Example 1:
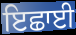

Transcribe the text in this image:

ਇਛਾਈ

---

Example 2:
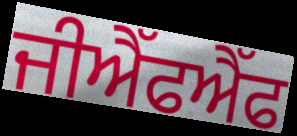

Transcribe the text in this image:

ਜੀਐੱਫਐੱਫ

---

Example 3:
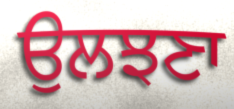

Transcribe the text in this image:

ਉਲਝਣਾ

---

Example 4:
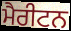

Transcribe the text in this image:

ਮੈਰੀਟਨ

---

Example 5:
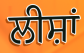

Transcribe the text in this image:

ਲੀਸ਼ਾਂ